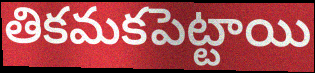
తికమకపెట్టాయి